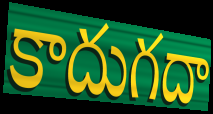
కాదుగదా